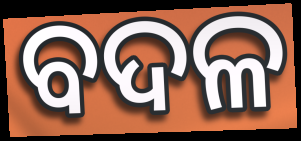
ବଦଳ